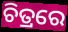
ଚିତ୍ରରେ